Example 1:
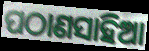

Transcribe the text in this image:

ପଠାଣସାହିଆ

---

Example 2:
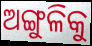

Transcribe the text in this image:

ଅଙ୍ଗୁଳିକୁ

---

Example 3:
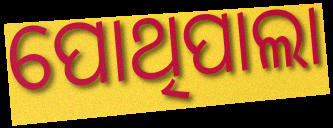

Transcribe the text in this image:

ପୋଥିପାଲା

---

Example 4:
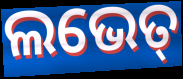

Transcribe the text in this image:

ଲଭେତ୍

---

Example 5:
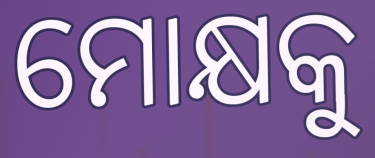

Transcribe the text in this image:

ମୋକ୍ଷକୁ